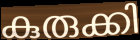
കുരുക്കി